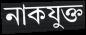
নাকযুক্ত